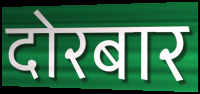
दोरबार